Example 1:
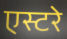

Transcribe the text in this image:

एस्टरे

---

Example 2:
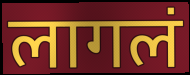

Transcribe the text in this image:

लागलं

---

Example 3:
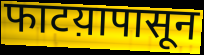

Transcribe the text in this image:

फाटय़ापासून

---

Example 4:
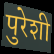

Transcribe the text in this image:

पुरेशी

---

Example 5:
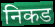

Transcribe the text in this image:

निकड